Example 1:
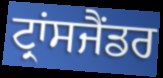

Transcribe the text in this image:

ਟ੍ਰਾਂਸਜੈਂਡਰ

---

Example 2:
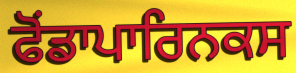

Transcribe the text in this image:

ਫੋਂਡਾਪਾਰਿਨਕਸ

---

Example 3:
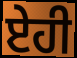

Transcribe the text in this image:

ਏਹੀ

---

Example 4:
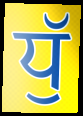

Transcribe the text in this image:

ਧੁੱ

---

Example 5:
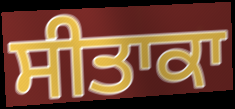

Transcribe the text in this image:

ਸੀਤਾਕਾ